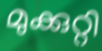
മുക്കുറ്റി